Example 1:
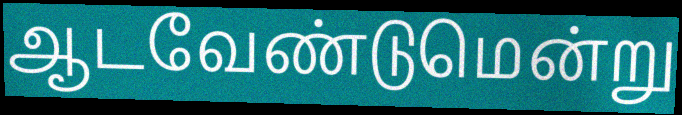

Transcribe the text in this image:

ஆடவேண்டுமென்று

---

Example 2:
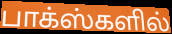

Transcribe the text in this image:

பாக்ஸ்களில்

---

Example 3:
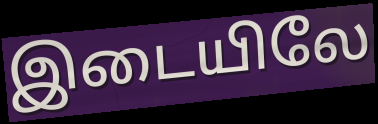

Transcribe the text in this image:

இடையிலே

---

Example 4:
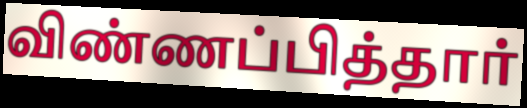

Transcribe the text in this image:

விண்ணப்பித்தார்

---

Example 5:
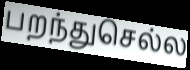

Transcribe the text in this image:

பறந்துசெல்ல